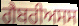
ਗੈਬਰੀਅਸਸ